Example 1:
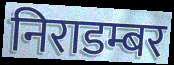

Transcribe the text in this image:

निराडम्बर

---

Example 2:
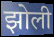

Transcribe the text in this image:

झोली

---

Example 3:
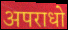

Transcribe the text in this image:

अपराधो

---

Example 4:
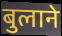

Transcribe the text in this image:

बुलाने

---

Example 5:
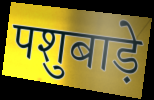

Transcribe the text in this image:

पशुबाड़े